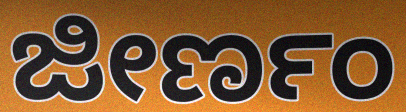
ಜೀರ್ಣಂ